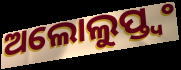
ଅଲୋଲୁପ୍ତ୍ୱଂ